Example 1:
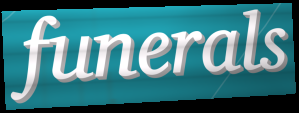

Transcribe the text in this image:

funerals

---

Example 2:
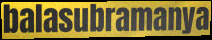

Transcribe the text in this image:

balasubramanya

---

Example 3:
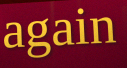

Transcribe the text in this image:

again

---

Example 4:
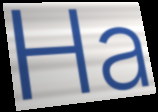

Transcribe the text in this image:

Ha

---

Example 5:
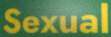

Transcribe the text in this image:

Sexual